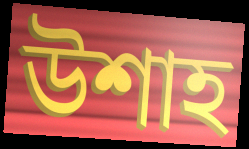
উশাহ